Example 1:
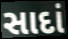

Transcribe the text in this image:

સાદાં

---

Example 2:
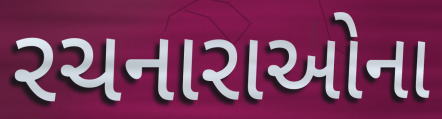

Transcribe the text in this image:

રચનારાઓના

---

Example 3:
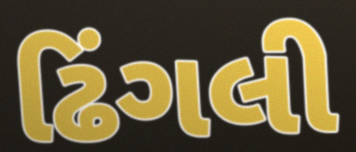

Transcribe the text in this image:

ઢિંગલી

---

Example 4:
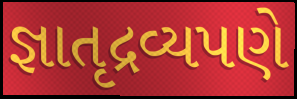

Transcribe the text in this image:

જ્ઞાતૃદ્રવ્યપણે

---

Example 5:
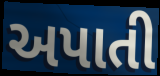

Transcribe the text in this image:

અપાતી